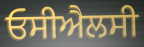
ਓਸੀਐਲਸੀ